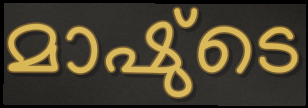
മാഷു്ടെ